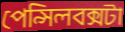
পেন্সিলবক্সটা